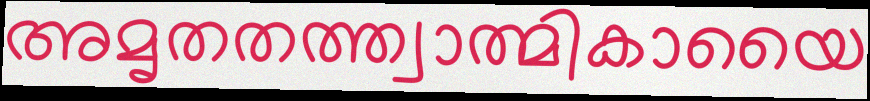
അമൃതതത്ത്വാത്മികായൈ